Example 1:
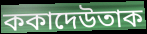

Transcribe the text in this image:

ককাদেউতাক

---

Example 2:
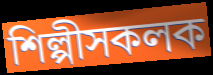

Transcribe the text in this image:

শিল্পীসকলক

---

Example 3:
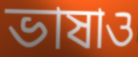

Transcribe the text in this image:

ভাষাও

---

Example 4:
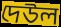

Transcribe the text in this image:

দেউল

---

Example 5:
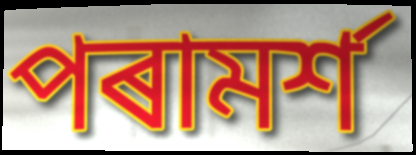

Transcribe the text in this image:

পৰামৰ্শ